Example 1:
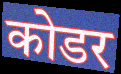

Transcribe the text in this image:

कोडर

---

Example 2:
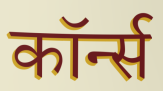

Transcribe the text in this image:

कॉर्न्स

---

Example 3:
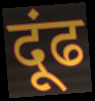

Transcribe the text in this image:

दूंढ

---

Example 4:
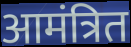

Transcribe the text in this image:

आमंत्रित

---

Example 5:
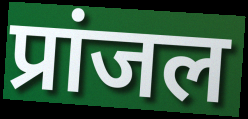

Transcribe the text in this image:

प्रांजल